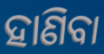
ହାଣିବା